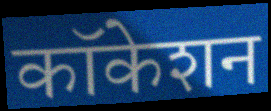
कॉकेशन